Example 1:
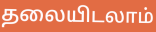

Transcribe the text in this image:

தலையிடலாம்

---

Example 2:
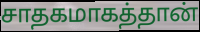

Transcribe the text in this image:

சாதகமாகத்தான்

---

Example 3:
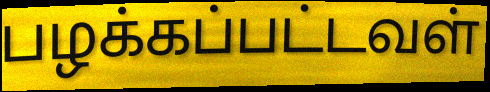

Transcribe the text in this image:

பழக்கப்பட்டவள்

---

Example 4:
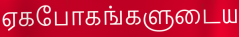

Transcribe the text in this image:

ஏகபோகங்களுடைய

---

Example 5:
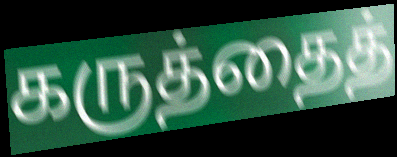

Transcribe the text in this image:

கருத்தைத்